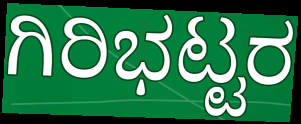
ಗಿರಿಭಟ್ಟರ